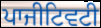
ਪਾਜੀਟਿਵਟੀ